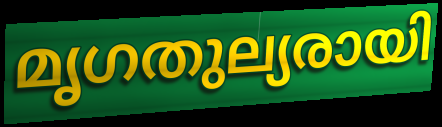
മൃഗതുല്യരായി